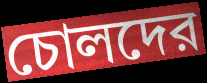
চোলদের